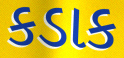
કડાક